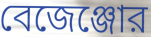
বেজেঞ্জোর